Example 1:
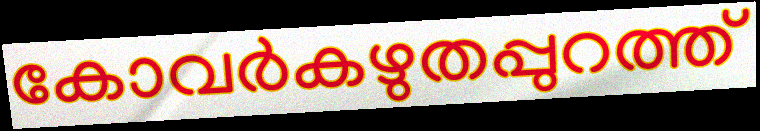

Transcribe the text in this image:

കോവർകഴുതപ്പുറത്ത്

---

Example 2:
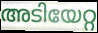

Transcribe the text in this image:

അടിയേറ്റ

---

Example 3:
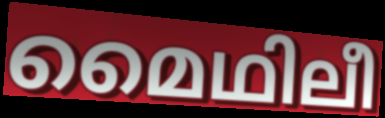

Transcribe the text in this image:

മൈഥിലീ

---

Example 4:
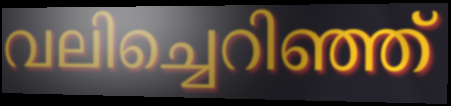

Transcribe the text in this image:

വലിച്ചെറിഞ്ഞ്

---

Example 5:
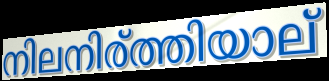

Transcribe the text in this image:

നിലനിര്ത്തിയാല്